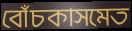
বোঁচকাসমেত